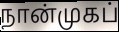
நான்முகப்